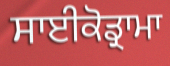
ਸਾਈਕੋਡ੍ਰਾਮਾ